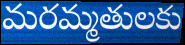
మరమ్మతులకు